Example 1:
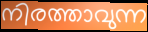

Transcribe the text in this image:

നിരത്താവുന്ന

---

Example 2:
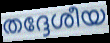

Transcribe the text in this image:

തദ്ദേശീയ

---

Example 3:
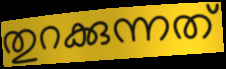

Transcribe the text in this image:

തുറക്കുന്നത്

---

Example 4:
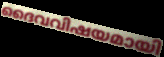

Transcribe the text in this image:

ദൈവവിഷയമായി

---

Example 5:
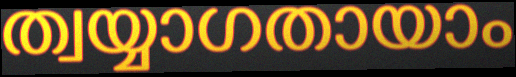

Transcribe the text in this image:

ത്വയ്യാഗതായാം